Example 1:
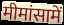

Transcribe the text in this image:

मीमांसामें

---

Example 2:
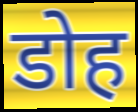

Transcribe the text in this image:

डोह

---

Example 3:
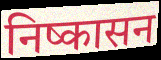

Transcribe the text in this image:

निष्कासन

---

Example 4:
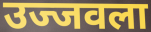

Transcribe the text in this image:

उज्जवला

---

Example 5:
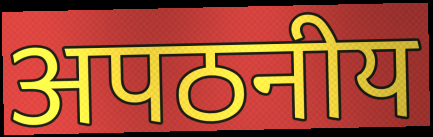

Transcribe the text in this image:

अपठनीय